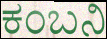
ಕಂಬನಿ